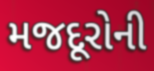
મજદૂરોની